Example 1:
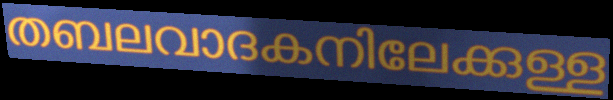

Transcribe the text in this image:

തബലവാദകനിലേക്കുള്ള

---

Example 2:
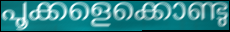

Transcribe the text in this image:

പൂക്കളെക്കൊണ്ടു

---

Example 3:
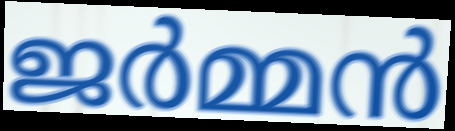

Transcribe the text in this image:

ജർമ്മൻ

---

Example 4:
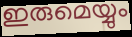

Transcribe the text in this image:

ഇരുമെയ്യും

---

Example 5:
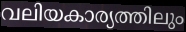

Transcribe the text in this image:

വലിയകാര്യത്തിലും